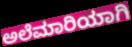
ಅಲೆಮಾರಿಯಾಗಿ